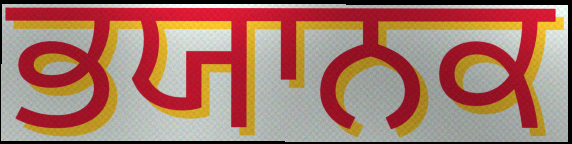
ਭਯਾਨਕ